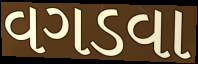
વગડવા